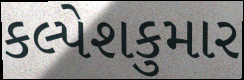
કલ્પેશકુમાર